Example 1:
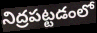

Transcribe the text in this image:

నిద్రపట్టడంలో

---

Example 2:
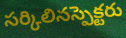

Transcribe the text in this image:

సర్కిలినస్పెక్టరు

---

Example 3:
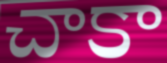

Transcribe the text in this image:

చాకా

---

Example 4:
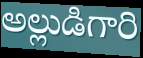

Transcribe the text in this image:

అల్లుడిగారి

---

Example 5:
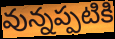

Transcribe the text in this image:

వున్నప్పటికి